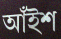
আঁইশ